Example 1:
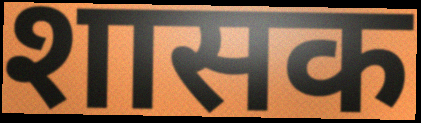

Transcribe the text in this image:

शासक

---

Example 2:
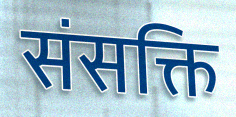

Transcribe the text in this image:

संसक्ति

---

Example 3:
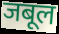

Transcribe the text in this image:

जबूल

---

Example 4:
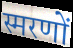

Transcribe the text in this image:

स्मरणों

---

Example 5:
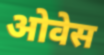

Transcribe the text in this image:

ओवेस